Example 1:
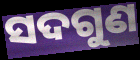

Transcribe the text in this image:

ସଦଗୁଣ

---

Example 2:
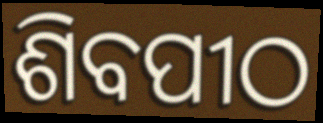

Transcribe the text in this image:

ଶିବପୀଠ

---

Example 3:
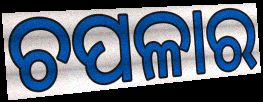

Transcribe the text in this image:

ଚପଳାର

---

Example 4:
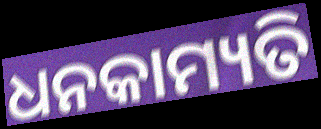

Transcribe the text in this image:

ଧନକାମ୍ୟତି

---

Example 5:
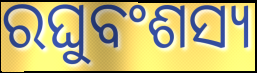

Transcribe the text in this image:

ରଘୁବଂଶସ୍ୟ